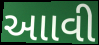
આાવી